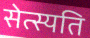
सेत्स्यति